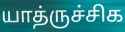
யாத்ருச்சிக